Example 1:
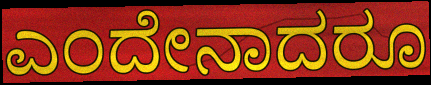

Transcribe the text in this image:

ಎಂದೇನಾದರೂ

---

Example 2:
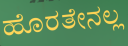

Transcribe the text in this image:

ಹೊರತೇನಲ್ಲ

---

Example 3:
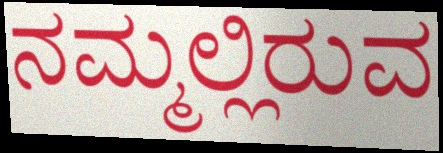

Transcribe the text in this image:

ನಮ್ಮಲ್ಲಿರುವ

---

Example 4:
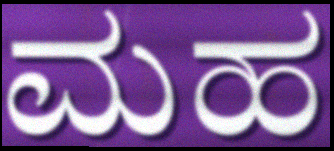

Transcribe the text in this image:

ಮಹ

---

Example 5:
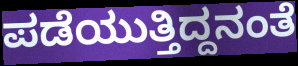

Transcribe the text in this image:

ಪಡೆಯುತ್ತಿದ್ದನಂತೆ